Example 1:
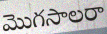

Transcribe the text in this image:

మొగసాలరా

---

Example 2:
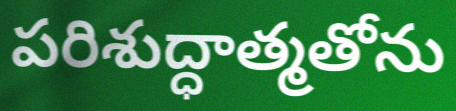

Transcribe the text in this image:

పరిశుద్ధాత్మతోను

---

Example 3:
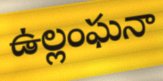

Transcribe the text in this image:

ఉల్లంఘనా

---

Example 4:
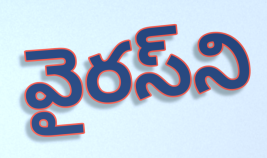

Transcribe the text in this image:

వైరస్‌ని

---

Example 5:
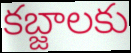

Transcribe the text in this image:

కబ్జాలకు